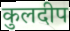
कुलदीप